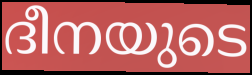
ദീനയുടെ